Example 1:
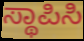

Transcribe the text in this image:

ಸ್ಥಾಪಿಸಿ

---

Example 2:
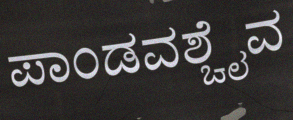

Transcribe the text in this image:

ಪಾಂಡವಶ್ಚೈವ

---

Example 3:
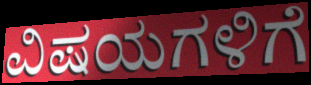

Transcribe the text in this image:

ವಿಷಯಗಳಿಗೆ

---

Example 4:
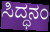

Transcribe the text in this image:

ಸಿದ್ಧನಂ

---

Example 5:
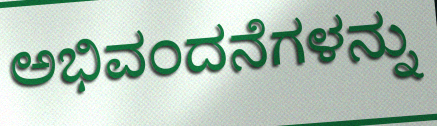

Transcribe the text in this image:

ಅಭಿವಂದನೆಗಳನ್ನು